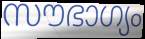
സൗഭാഗ്യം